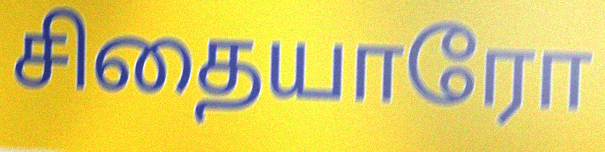
சிதையாரோ